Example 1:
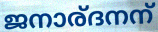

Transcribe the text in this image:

ജനാര്ദനന്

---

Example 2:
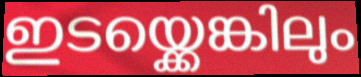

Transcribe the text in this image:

ഇടയ്ക്കെങ്കിലും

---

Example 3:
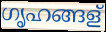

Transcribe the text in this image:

ഗൃഹങ്ങള്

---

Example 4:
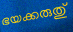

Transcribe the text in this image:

ഭയക്കരുതു്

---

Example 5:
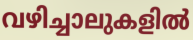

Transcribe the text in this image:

വഴിച്ചാലുകളിൽ